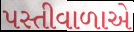
પસ્તીવાળાએ